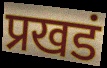
प्रखडं